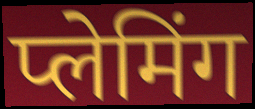
प्लेमिंग